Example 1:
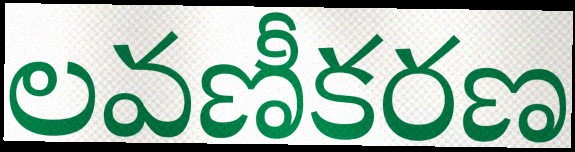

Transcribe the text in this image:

లవణీకరణ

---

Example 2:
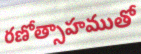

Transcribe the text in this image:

రణోత్సాహముతో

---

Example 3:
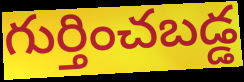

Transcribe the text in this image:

గుర్తించబడ్డ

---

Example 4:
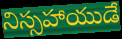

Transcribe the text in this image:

నిస్సహాయుడే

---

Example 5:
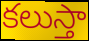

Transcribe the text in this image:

కలుస్తా